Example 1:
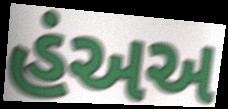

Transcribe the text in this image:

હંઅઅ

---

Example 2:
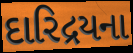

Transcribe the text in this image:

દારિદ્રયના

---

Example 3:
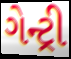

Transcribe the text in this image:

ગેન્ટ્રી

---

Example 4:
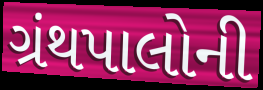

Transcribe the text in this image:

ગ્રંથપાલોની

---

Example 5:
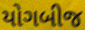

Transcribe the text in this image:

યોગબીજ